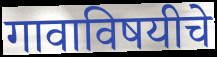
गावाविषयीचे